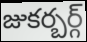
జుకర్బర్గ్